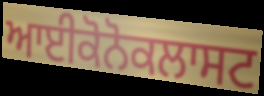
ਆਈਕੋਨੋਕਲਾਸਟ